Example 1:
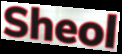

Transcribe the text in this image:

Sheol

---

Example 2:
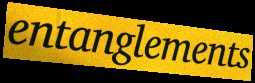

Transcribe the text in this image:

entanglements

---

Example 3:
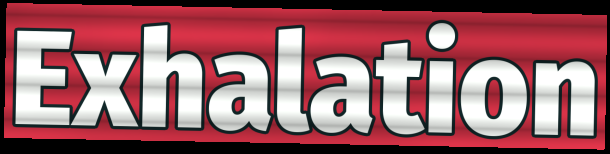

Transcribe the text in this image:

Exhalation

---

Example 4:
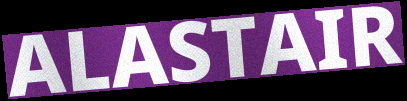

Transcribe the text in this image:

ALASTAIR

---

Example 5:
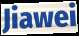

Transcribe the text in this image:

Jiawei